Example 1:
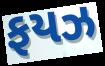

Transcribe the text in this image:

ફયઝ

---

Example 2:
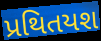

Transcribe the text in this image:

પ્રથિતયશ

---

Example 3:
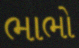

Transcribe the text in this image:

ભાભો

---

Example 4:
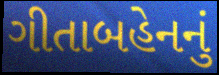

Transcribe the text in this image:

ગીતાબહેનનું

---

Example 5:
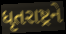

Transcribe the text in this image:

ધૃતરાષ્ટ્રને